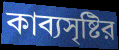
কাব্যসৃষ্টির